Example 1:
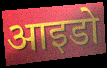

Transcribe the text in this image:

आइडो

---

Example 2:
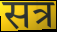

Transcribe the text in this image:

सत्र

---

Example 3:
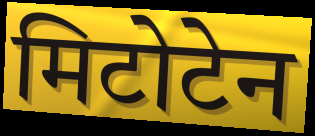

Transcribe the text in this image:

मिटोटेन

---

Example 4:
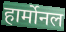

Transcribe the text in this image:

हार्मोनल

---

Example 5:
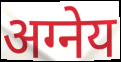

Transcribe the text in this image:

अग्नेय